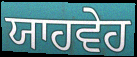
ਯਾਹਵੇਹ